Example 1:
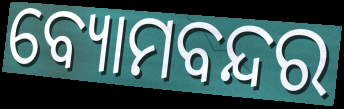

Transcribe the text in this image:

ବ୍ୟୋମବନ୍ଦର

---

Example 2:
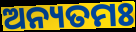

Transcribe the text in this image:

ଅନ୍ୟତମଃ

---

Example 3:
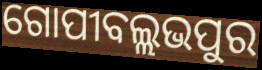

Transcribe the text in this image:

ଗୋପୀବଲ୍ଲଭପୁର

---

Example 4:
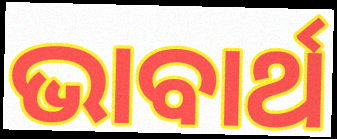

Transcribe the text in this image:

ଭାବାର୍ଥ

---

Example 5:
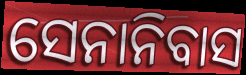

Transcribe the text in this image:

ସେନାନିବାସ